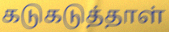
கடுகடுத்தாள்